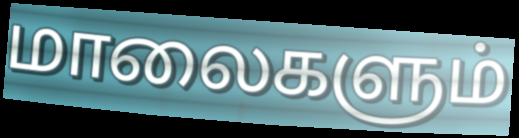
மாலைகளும்